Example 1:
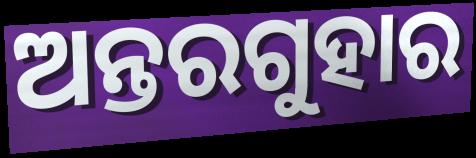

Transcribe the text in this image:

ଅନ୍ତରଗୁହାର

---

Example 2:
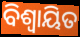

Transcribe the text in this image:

ବିଶ୍ବାୟିତ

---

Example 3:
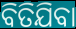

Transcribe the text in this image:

ବିତିଯିବା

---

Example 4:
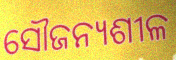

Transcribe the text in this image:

ସୌଜନ୍ୟଶୀଳ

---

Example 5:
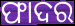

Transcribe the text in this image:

ଫାଦର